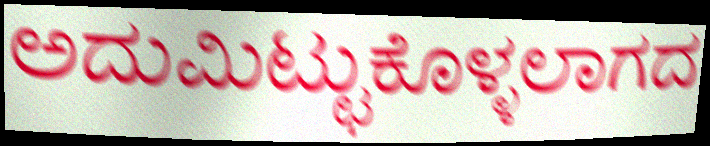
ಅದುಮಿಟ್ಟುಕೊಳ್ಳಲಾಗದ